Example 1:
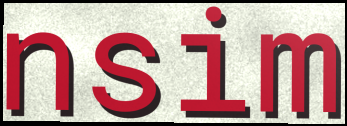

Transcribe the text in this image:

nsim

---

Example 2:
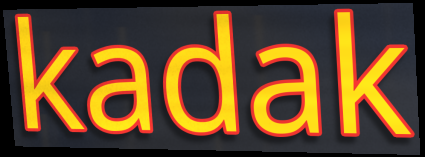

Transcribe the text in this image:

kadak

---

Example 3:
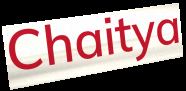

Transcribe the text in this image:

Chaitya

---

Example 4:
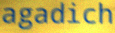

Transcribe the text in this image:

agadich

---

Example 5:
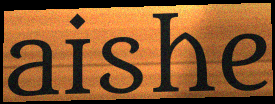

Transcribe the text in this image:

aishe